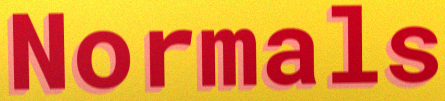
Normals